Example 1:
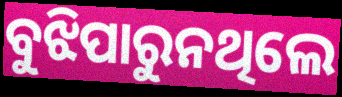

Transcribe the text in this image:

ବୁଝିପାରୁନଥିଲେ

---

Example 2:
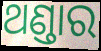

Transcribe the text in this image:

ଥଣ୍ଡାର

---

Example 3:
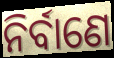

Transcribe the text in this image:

ନିର୍ବାଣେ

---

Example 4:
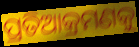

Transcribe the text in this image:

ପ୍ରତିଆକ୍ରମଣକୁ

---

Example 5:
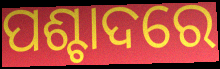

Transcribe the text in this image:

ପଶ୍ଚାଦରେ